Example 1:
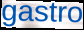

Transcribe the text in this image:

gastro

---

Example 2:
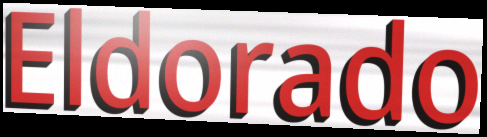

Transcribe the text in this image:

Eldorado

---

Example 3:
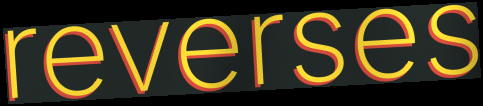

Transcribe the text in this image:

reverses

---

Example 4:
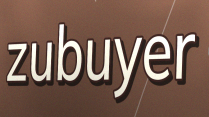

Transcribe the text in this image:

zubuyer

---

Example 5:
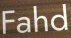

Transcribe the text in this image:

Fahd